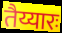
तैय्यारः